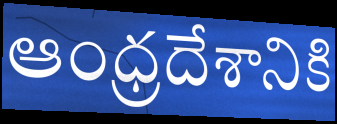
ఆంధ్రదేశానికి